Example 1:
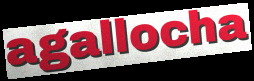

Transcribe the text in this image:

agallocha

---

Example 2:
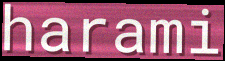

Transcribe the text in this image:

harami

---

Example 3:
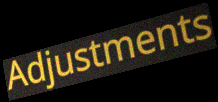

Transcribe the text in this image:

Adjustments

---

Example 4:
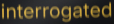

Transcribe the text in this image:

interrogated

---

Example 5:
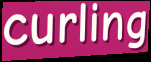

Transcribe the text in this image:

curling